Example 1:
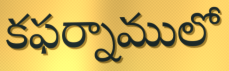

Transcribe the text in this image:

కఫర్నాములో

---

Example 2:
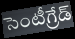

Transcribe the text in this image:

సెంటీగ్రేడ్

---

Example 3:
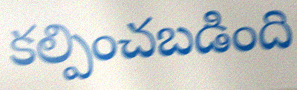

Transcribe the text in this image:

కల్పించబడింది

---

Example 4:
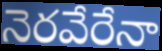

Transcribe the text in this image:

నెరవేరేనా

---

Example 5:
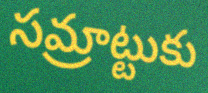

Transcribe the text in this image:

సమ్రాట్టుకు